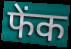
फेंक